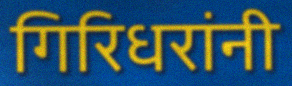
गिरिधरांनी